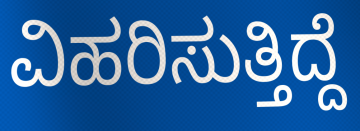
ವಿಹರಿಸುತ್ತಿದ್ದೆ